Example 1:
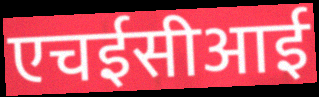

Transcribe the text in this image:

एचईसीआई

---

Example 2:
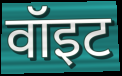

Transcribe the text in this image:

वॉइट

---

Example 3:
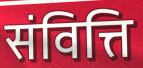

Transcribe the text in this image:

संवित्ति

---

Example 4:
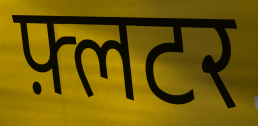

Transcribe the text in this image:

फ़्लटर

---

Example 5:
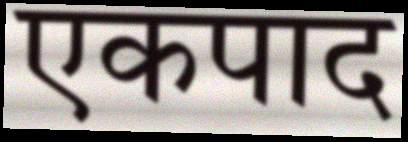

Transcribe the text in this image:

एकपाद